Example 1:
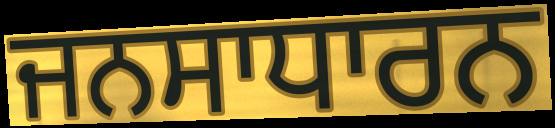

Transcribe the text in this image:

ਜਨਸਾਧਾਰਨ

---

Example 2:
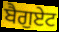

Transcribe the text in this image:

ਬੈਗੁਏਟ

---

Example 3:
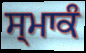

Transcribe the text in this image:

ਸ੍ਮਾਕੰ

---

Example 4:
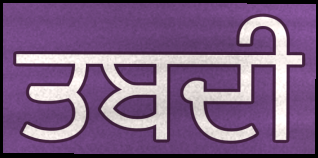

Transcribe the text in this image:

ਤਬਦੀ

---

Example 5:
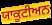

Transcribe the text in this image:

ਯਾਕੂਟੀਅਨ